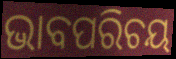
ଭାବପରିଚୟ